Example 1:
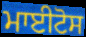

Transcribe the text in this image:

ਮਾਈਟੋਸ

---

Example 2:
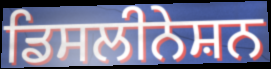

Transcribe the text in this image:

ਡਿਸਲੀਨੇਸ਼ਨ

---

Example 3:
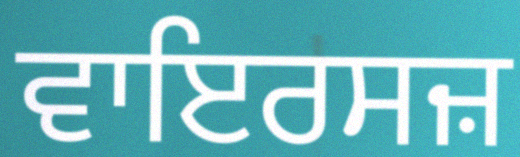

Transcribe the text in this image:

ਵਾਇਰਸਜ਼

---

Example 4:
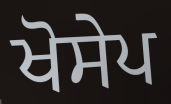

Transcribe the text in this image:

ਖੋਸੇਪ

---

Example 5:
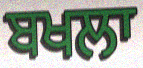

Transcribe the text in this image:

ਬਖਲਾ